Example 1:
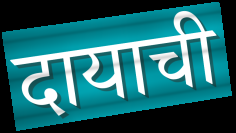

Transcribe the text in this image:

दायाची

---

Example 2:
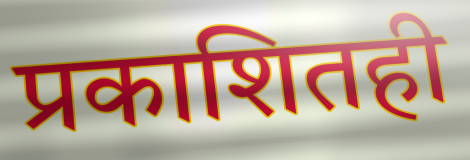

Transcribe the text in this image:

प्रकाशितही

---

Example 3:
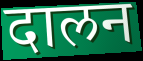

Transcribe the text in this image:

दालन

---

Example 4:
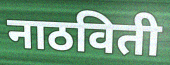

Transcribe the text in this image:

नाठविती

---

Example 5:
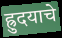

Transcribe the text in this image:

ह्रुदयाचे